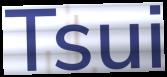
Tsui